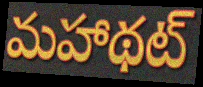
మహాథట్